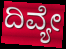
ದಿವ್ಯೇ